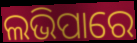
ଲଭିପାରେ